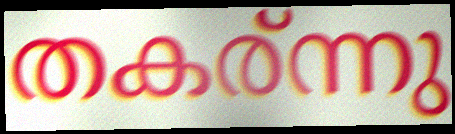
തകര്ന്നു